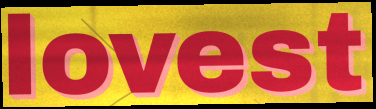
lovest